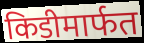
किडीमार्फत